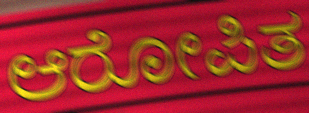
ಆರೋಪಿತ